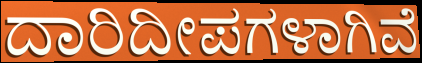
ದಾರಿದೀಪಗಳಾಗಿವೆ